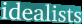
idealists